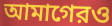
আমাগেরও